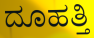
ದೂಹತ್ತಿ